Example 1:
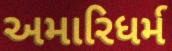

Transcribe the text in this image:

અમારિધર્મ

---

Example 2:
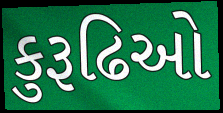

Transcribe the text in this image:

કુરૂઢિઓ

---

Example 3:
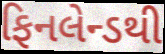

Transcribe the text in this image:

ફિનલેન્ડથી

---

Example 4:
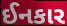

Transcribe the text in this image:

ઈનકાર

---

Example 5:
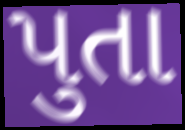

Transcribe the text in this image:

પુતા